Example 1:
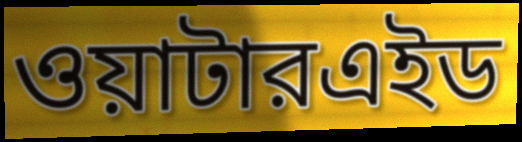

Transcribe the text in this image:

ওয়াটারএইড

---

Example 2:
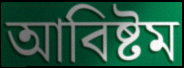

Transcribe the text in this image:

আবিষ্টম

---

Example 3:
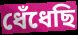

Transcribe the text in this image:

ধেঁধেছি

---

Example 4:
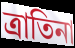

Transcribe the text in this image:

ত্রাতিনা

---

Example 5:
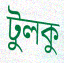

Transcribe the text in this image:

টুলকু